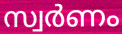
സ്വർണം